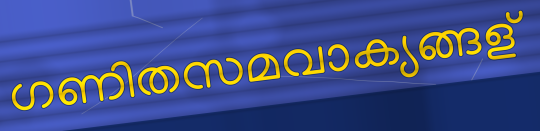
ഗണിതസമവാക്യങ്ങള്